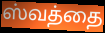
ஸ்வத்தை